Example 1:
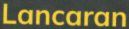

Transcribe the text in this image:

Lancaran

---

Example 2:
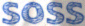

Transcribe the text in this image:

soss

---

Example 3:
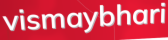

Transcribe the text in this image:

vismaybhari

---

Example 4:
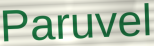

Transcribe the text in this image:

Paruvel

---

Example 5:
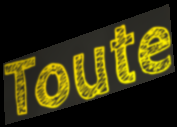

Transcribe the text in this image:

Toute